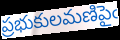
ప్రభుకులమణిపైఁ